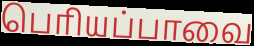
பெரியப்பாவை